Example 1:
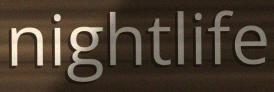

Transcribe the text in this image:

nightlife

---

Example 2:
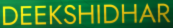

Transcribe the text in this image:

DEEKSHIDHAR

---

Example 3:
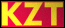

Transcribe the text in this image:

KZT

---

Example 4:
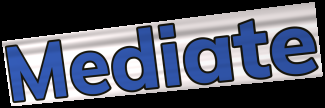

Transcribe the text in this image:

Mediate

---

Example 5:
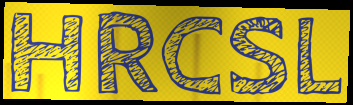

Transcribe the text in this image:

HRCSL